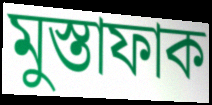
মুস্তাফাক